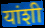
यांशी